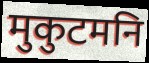
मुकुटमनि